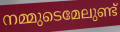
നമ്മുടെമേലുണ്ട്